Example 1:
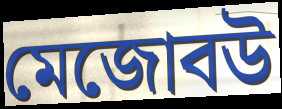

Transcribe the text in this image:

মেজোবউ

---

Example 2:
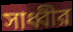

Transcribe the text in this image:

সাধ্বীর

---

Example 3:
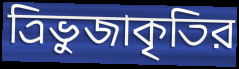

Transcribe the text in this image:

ত্রিভুজাকৃতির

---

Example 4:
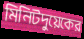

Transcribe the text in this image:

মিনিটদুয়েকের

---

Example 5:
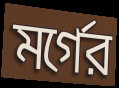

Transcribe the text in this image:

মর্গের